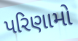
પરિણામો